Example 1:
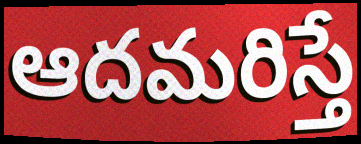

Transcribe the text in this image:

ఆదమరిస్తే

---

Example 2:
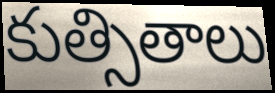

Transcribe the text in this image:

కుత్సితాలు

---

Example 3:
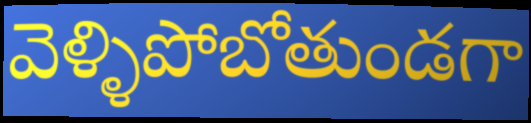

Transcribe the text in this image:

వెళ్ళిపోబోతుండగా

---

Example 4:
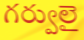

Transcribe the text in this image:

గర్వులై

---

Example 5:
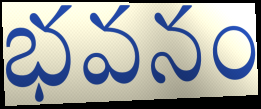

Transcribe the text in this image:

భవనం